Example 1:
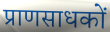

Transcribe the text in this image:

प्राणसाधकों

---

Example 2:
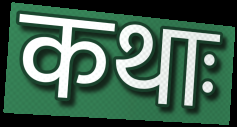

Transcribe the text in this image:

कथाः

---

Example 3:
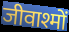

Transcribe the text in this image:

जीवाश्मों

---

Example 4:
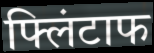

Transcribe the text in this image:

फ्लिंटाफ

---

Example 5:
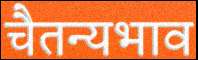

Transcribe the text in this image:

चैतन्यभाव